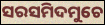
ସରସମିଦମୁଚେ